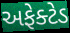
અફેક્ટેડ